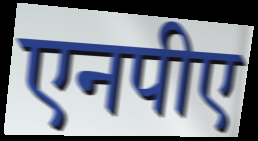
एनपीए